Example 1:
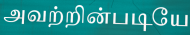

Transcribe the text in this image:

அவற்றின்படியே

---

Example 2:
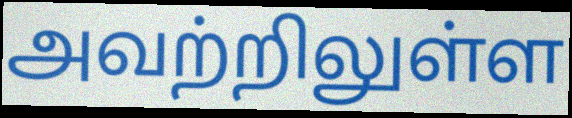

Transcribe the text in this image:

அவற்றிலுள்ள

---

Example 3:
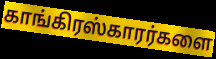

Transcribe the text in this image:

காங்கிரஸ்காரர்களை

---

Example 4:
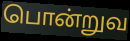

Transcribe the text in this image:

பொன்றுவ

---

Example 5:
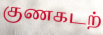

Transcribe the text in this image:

குணகடற்